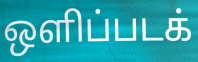
ஒளிப்படக்